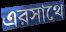
এরসাথে